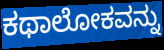
ಕಥಾಲೋಕವನ್ನು